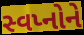
સ્વપ્નોને